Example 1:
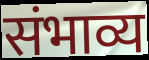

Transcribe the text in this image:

संभाव्य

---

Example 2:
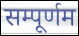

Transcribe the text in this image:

सम्पूर्णम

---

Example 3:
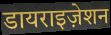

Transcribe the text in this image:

डायराइज़ेशन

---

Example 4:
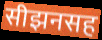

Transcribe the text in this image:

सीझनसह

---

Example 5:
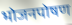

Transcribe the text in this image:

भोजनपोषण